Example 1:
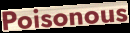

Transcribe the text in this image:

Poisonous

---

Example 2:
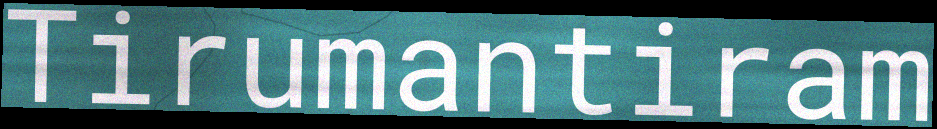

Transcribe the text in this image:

Tirumantiram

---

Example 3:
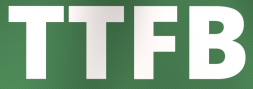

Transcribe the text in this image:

TTFB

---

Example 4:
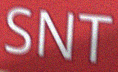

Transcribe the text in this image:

SNT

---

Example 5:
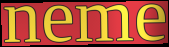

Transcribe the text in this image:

neme